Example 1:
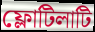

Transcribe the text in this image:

ফ্লোটিলাটি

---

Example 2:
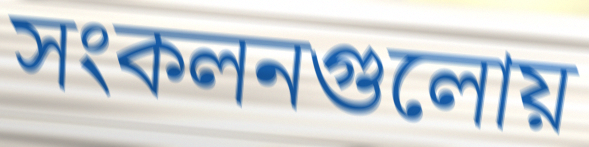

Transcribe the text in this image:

সংকলনগুলোয়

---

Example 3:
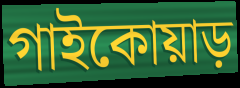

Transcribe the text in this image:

গাইকোয়াড়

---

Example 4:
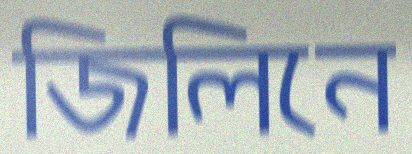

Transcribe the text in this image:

জিলিনে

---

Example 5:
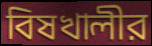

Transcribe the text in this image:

বিষখালীর